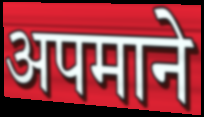
अपमाने